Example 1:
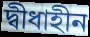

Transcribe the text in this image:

দ্বীধাহীন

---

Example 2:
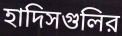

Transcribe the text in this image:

হাদিসগুলির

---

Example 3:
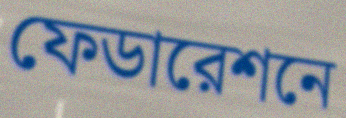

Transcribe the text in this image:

ফেডারেশনে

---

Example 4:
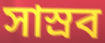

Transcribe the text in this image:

সাস্রব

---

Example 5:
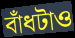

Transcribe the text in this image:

বাঁধটাও